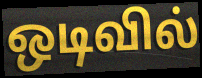
ஒடிவில்